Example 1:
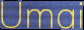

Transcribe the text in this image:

Umai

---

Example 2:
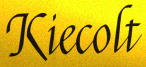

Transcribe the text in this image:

Kiecolt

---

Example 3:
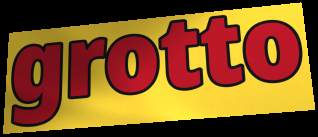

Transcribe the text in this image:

grotto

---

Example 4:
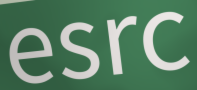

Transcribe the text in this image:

esrc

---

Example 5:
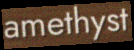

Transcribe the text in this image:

amethyst